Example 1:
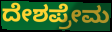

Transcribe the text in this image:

ದೇಶಪ್ರೇಮ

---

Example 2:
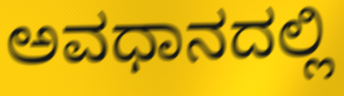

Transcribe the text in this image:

ಅವಧಾನದಲ್ಲಿ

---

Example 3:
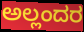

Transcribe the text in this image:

ಅಲ್ಲಂದರ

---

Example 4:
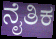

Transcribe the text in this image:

ನೈತಿಕ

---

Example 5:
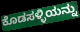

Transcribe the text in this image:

ಕೊಡಸಳ್ಳಿಯನ್ನು